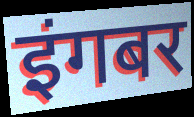
इंगबर